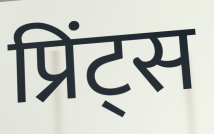
प्रिंट्स